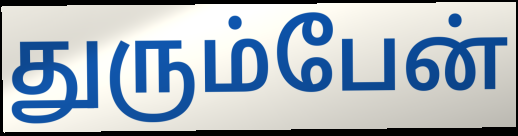
துரும்பேன்